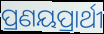
ପ୍ରଣୟପ୍ରାର୍ଥୀ